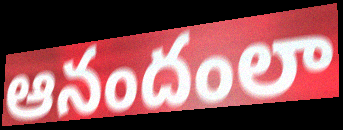
ఆనందంలా